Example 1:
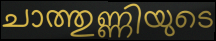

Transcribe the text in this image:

ചാത്തുണ്ണിയുടെ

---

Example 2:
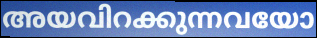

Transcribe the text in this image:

അയവിറക്കുന്നവയോ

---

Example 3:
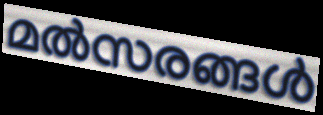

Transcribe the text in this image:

മൽസരങ്ങൾ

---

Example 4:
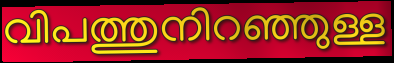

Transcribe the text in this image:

വിപത്തുനിറഞ്ഞുള്ള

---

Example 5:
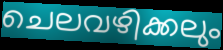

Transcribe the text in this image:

ചെലവഴിക്കലും